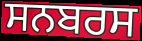
ਸਨਬਰਸ